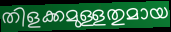
തിളക്കമുള്ളതുമായ